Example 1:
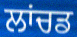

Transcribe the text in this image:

ਲਾਂਚਡ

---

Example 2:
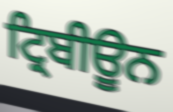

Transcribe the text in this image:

ਟ੍ਰਿਬੀਊਨ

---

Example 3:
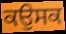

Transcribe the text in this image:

ਕਉਸਕ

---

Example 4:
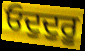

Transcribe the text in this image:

ਓਦੁਦੁਰੂ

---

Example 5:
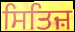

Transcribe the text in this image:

ਸਿਤਿਜ਼